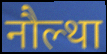
नौल्था